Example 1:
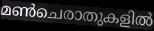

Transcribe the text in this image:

മൺചെരാതുകളിൽ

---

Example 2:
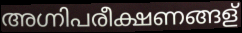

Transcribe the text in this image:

അഗ്നിപരീക്ഷണങ്ങള്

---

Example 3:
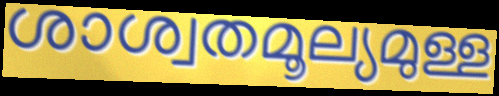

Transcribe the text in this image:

ശാശ്വതമൂല്യമുള്ള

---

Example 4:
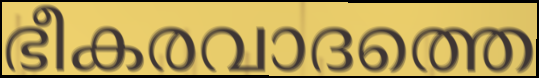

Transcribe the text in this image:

ഭീകരവാദത്തെ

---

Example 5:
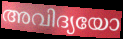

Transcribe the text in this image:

അവിദ്യയോ